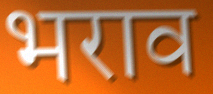
भराव